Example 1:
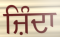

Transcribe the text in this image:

ਜ਼ਿੰਦਾ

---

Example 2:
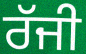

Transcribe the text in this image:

ਰੱਜੀ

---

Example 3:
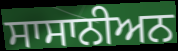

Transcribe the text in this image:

ਸਾਸਾਨੀਅਨ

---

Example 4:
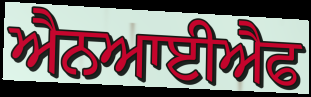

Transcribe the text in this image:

ਐਨਆਈਐਫ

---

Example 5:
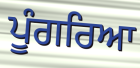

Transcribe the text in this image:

ਪੂੰਗਰਿਆ